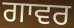
ਗਾਵਰ